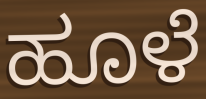
ಹೂಳೆ